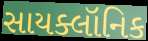
સાયક્લૉનિક